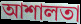
আশালতা